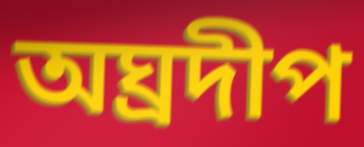
অঘ্ৰদীপ